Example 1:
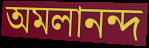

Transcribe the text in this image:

অমলানন্দ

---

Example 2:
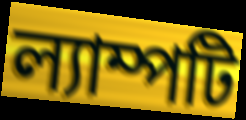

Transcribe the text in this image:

ল্যাম্পটি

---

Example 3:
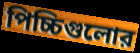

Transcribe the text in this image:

পিচ্চিগুলোর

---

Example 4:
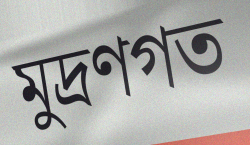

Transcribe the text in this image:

মুদ্রণগত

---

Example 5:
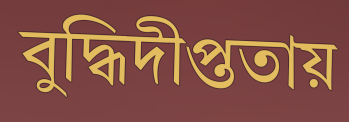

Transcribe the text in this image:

বুদ্ধিদীপ্ততায়